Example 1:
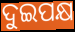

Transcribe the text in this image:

ଦୁଇପକ୍ଷ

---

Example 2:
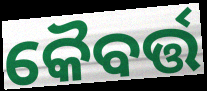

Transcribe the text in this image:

କୈବର୍ତ୍ତ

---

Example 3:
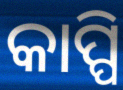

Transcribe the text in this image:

କାପ୍ପି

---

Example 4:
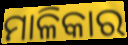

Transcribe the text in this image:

ମାଳିକାର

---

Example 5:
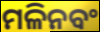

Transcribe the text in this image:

ମଳିନବଂ